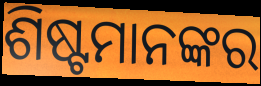
ଶିଷ୍ଟମାନଙ୍କର